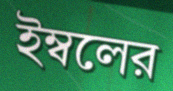
ইম্বলের